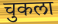
चुकला